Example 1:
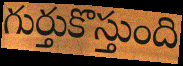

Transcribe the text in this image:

గుర్తుకొస్తుంది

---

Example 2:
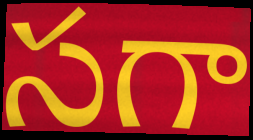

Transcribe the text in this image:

సగా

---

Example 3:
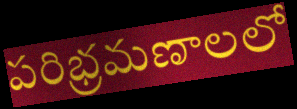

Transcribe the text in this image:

పరిభ్రమణాలలో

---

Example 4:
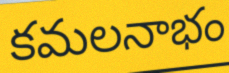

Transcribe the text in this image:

కమలనాభం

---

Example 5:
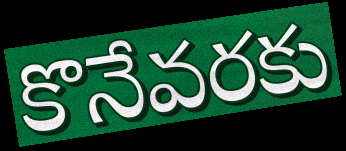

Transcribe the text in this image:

కొనేవరకు